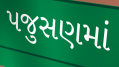
પજુસણમાં